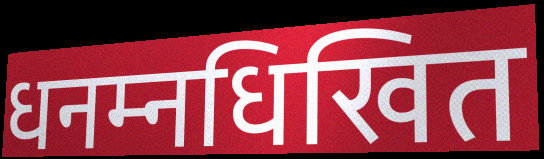
धनम्नधिखित